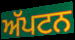
ਅੱਪਟਨ